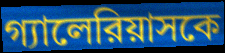
গ্যালেরিয়াসকে